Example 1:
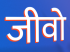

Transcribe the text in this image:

जीवो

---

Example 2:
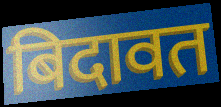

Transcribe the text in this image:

बिदावत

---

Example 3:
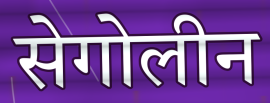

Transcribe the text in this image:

सेगोलीन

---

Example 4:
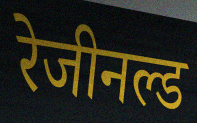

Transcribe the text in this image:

रेजीनल्ड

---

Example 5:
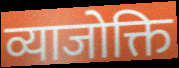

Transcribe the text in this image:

व्याजोक्ति